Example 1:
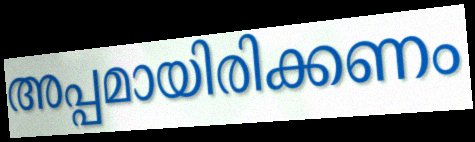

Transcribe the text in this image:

അപ്പമായിരിക്കണം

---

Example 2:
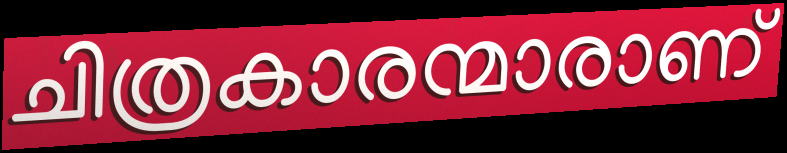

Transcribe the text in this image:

ചിത്രകാരന്മാരാണ്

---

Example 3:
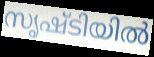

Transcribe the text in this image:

സൃഷ്ടിയിൽ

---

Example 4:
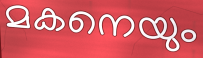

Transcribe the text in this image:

മകനെയും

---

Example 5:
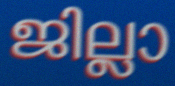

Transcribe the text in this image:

ജില്ലാ